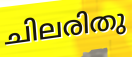
ചിലരിതു